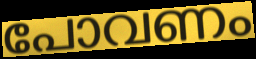
പോവണം